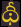
థీ